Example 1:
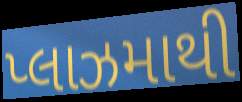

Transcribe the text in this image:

પ્લાઝમાથી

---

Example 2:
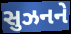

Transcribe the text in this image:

સુઝનને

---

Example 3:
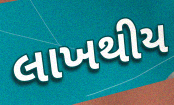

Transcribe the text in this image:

લાખથીય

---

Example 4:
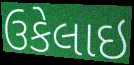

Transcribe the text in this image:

ઉકેલાઇ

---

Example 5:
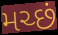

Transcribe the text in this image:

મચ્છં